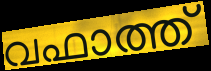
വഫാത്ത്